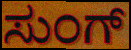
ಸುಂಗ್